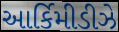
આર્કિમીડીઝે